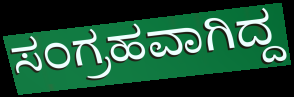
ಸಂಗ್ರಹವಾಗಿದ್ದ